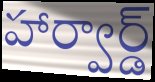
హార్వార్డ్